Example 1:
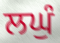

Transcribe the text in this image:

ਲਘੁੰ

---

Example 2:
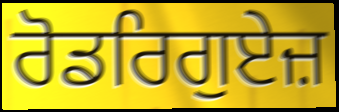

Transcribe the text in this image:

ਰੋਡਰਿਗੁਏਜ਼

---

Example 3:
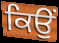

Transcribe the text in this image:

ਕਿਉੰ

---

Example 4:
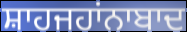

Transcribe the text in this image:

ਸ਼ਾਹਜਹਾਂਨਾਬਾਦ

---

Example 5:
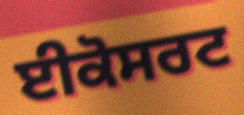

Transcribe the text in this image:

ਈਕੋਸਰਟ